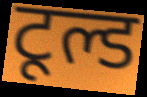
टूल्ड